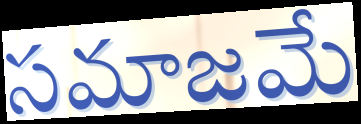
సమాజమే